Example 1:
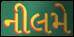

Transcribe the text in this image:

નીલમે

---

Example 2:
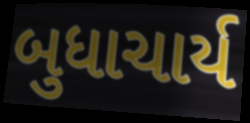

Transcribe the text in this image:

બુધાચાર્ય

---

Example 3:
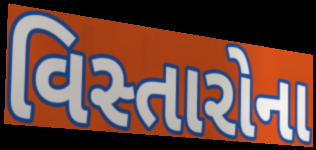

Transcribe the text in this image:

વિસ્તારોના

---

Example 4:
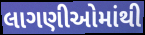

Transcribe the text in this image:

લાગણીઓમાંથી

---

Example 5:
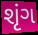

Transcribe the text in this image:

શૃંગ